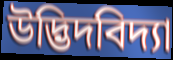
উদ্ভিদবিদ্যা